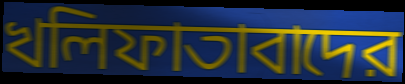
খলিফাতাবাদের